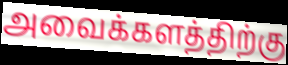
அவைக்களத்திற்கு